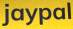
jaypal